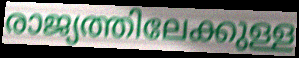
രാജ്യത്തിലേക്കുള്ള